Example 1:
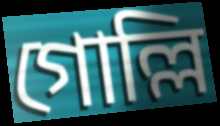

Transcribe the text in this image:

গোল্লি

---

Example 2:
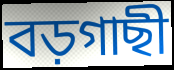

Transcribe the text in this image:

বড়গাছী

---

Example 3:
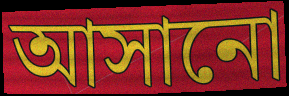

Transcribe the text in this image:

আসানো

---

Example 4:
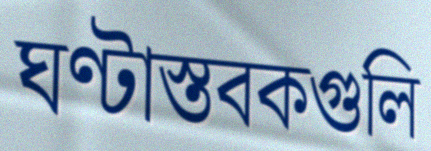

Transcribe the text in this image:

ঘণ্টাস্তবকগুলি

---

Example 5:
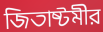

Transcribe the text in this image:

জিতাষ্টমীর